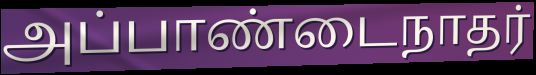
அப்பாண்டைநாதர்